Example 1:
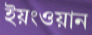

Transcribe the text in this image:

ইয়ংওয়ান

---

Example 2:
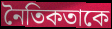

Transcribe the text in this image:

নৈতিকতাকে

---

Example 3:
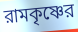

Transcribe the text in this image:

রামকৃষ্ণের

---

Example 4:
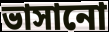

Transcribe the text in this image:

ভাসানো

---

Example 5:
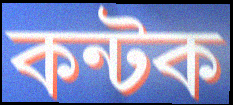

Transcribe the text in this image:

কন্টক